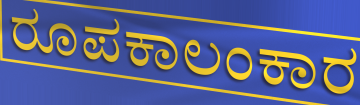
ರೂಪಕಾಲಂಕಾರ